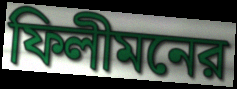
ফিলীমনের